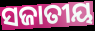
ସଜାତୀୟ